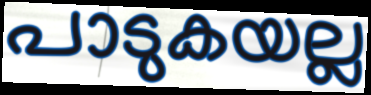
പാടുകയല്ല